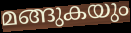
മങ്ങുകയും